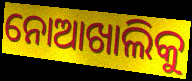
ନୋଆଖାଲିକୁ